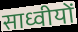
साध्वीयों